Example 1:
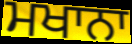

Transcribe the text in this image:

ਮਖਾਨਾ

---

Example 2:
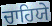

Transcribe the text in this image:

ਚਾਹਿਯੇ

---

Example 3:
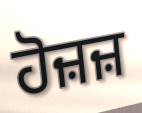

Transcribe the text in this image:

ਹੋਜ਼ਜ਼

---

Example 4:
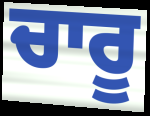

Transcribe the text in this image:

ਚਾਰੂ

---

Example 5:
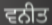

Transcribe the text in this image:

ਵਨੀਤ